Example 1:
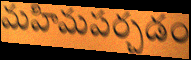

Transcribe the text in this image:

మహిమపర్చడం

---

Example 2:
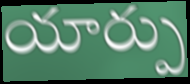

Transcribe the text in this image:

యార్పు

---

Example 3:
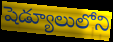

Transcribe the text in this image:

షెడ్యూలులోని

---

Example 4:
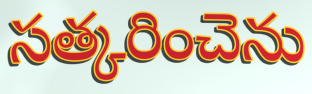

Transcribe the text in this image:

సత్కరించెను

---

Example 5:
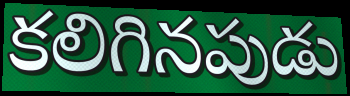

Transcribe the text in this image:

కలిగినపుడు